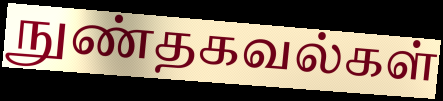
நுண்தகவல்கள்